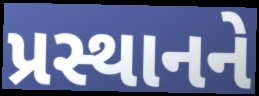
પ્રસ્થાનને